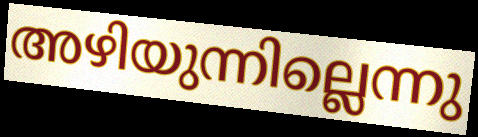
അഴിയുന്നില്ലെന്നു